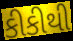
કીકીથી